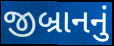
જીબ્રાનનું